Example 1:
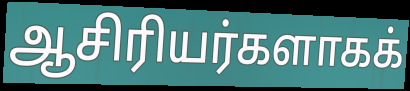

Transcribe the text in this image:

ஆசிரியர்களாகக்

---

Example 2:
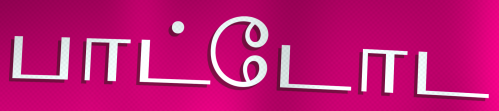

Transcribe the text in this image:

பாட்டோட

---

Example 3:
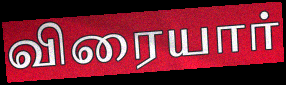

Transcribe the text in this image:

விரையார்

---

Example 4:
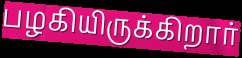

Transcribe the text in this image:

பழகியிருக்கிறார்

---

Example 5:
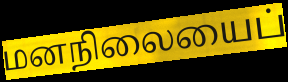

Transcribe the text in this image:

மனநிலையைப்